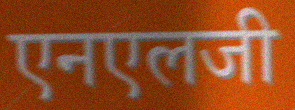
एनएलजी